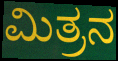
ಮಿತ್ರನ